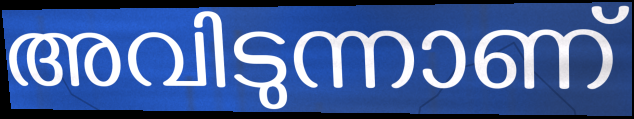
അവിടുന്നാണ്